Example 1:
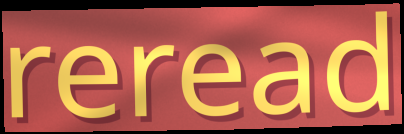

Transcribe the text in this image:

reread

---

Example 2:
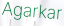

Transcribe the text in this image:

Agarkar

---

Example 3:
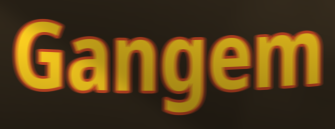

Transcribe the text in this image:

Gangem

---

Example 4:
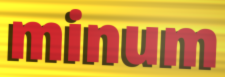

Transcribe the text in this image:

minum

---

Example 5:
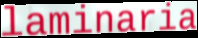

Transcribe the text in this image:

laminaria